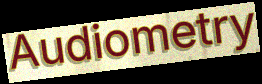
Audiometry